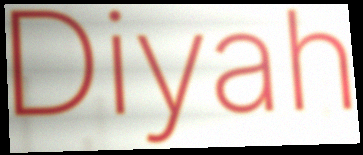
Diyah